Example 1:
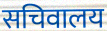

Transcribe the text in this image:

सचिवालय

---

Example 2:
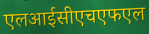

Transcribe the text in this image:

एलआईसीएचएफएल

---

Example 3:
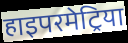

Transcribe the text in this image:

हाइपरमेट्रिया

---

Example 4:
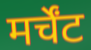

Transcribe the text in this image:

मर्चेंट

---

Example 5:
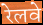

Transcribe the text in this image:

रेलवे